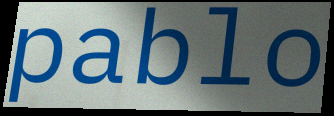
pablo